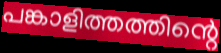
പങ്കാളിത്തത്തിന്റെ